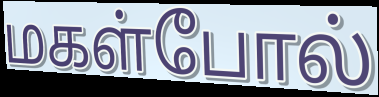
மகள்போல்